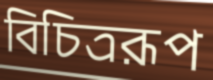
বিচিত্ররূপ